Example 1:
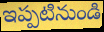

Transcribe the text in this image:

ఇప్పటినుండి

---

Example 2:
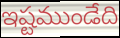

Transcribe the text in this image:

ఇష్టముండేది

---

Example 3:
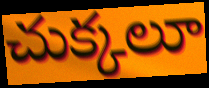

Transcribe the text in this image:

చుక్కలూ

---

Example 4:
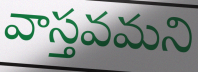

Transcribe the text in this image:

వాస్తవమని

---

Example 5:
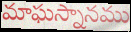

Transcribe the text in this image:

మాఘస్నానము